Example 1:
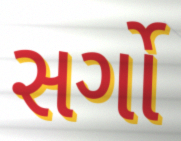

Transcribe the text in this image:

સર્ગો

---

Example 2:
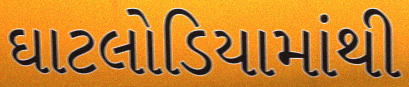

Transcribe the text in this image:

ઘાટલોડિયામાંથી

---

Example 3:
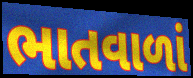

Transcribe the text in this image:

ભાતવાળાં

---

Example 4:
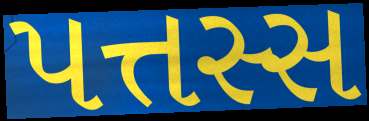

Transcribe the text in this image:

પત્તસ્સ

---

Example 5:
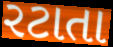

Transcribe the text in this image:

રટાતા